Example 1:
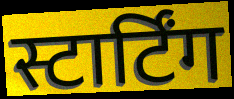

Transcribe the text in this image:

स्टार्टिंग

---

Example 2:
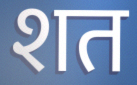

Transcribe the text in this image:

शत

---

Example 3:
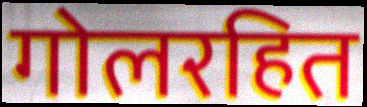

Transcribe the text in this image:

गोलरहित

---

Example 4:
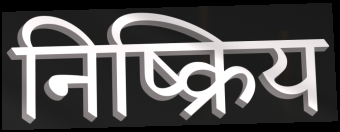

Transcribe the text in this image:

निष्क्रिय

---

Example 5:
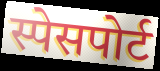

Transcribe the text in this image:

स्पेसपोर्ट